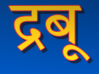
द्रबू